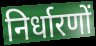
निर्धारणों